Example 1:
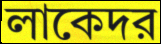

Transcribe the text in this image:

লাকেদর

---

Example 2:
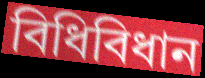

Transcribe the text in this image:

বিধিবিধান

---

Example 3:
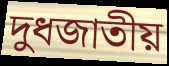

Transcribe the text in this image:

দুধজাতীয়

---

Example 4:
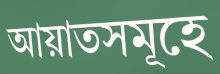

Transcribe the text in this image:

আয়াতসমূহে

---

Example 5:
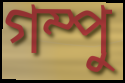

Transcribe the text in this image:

গম্পু